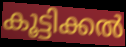
കൂട്ടിക്കൽ